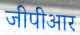
जीपीआर